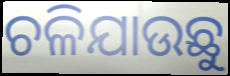
ଚଳିଯାଉଛୁ